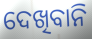
ଦେଖିବାନି